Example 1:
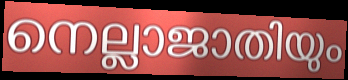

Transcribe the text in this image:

നെല്ലാജാതിയും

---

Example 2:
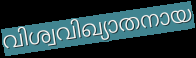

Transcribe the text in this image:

വിശ്വവിഖ്യാതനായ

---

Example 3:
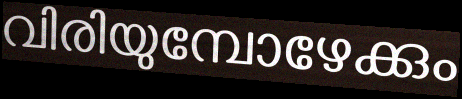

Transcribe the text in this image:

വിരിയുമ്പോഴേക്കും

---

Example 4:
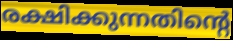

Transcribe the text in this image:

രക്ഷിക്കുന്നതിന്റെ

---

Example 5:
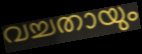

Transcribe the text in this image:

വച്ചതായും